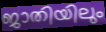
ജാതിയിലും